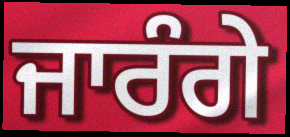
ਜਾਰੰਗੇ